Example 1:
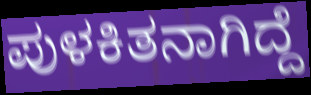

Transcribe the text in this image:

ಪುಳಕಿತನಾಗಿದ್ದೆ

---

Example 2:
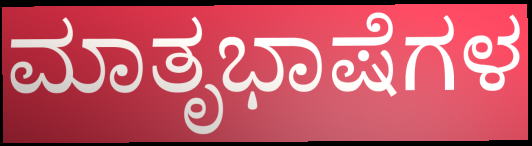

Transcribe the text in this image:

ಮಾತೃಭಾಷೆಗಳ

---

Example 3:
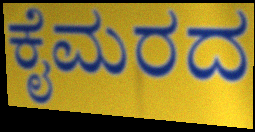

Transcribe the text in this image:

ಕೈಮರದ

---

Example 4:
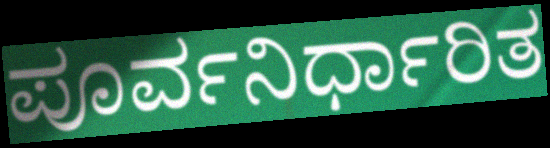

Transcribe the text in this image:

ಪೂರ್ವನಿರ್ಧಾರಿತ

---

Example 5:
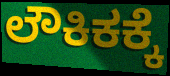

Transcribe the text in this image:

ಲೌಕಿಕಕ್ಕೆ